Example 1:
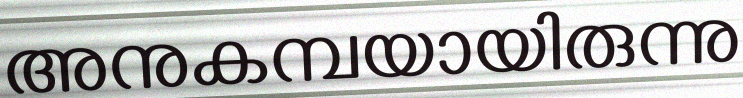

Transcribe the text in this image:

അനുകമ്പയായിരുന്നു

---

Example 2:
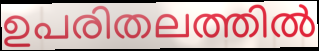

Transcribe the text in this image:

ഉപരിതലത്തിൽ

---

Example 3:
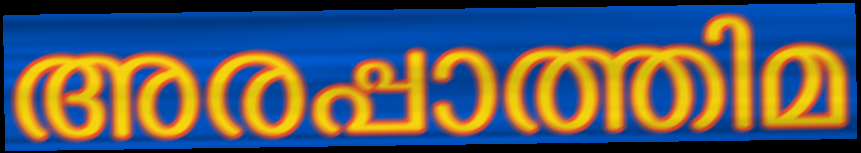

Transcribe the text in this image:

അരപ്പാത്തിമ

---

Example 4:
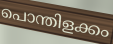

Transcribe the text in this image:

പൊന്തിളക്കം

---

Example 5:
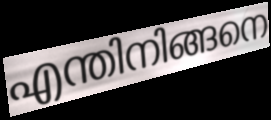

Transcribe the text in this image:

എന്തിനിങ്ങനെ